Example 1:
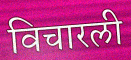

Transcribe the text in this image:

विचारली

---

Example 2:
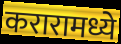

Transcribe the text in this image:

करारामध्ये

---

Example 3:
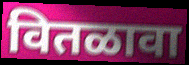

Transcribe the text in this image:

वितळावा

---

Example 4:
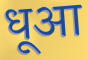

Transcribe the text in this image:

धूआ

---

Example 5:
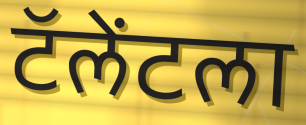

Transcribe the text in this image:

टॅलेंटला